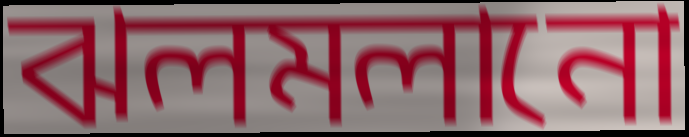
ঝলমলানো